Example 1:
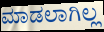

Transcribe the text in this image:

ಮಾಡಲಾಗಿಲ್ಲ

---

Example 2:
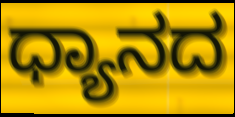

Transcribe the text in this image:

ಧ್ಯಾನದ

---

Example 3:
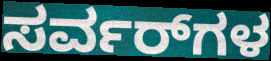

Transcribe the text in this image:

ಸರ್ವರ್‌ಗಳ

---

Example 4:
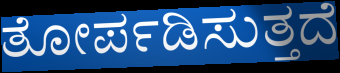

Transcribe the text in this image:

ತೋರ್ಪಡಿಸುತ್ತದೆ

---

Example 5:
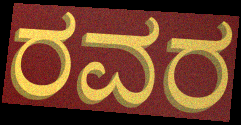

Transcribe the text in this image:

ರವರ